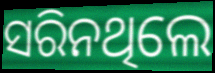
ସରିନଥିଲେ